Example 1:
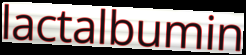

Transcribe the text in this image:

lactalbumin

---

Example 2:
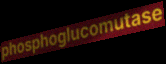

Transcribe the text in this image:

phosphoglucomutase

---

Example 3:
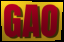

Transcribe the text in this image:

GAO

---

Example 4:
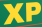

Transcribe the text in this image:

XP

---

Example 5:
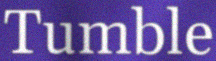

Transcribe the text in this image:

Tumble